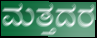
ಮತ್ತದರ